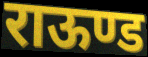
राऊण्ड